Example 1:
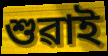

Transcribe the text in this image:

শুৱাই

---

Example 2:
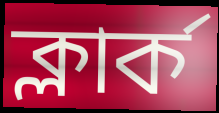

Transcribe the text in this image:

ক্লাৰ্ক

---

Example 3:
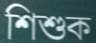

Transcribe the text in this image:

শিশুক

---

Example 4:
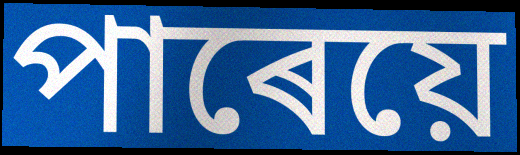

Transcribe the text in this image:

পাৰেয়ে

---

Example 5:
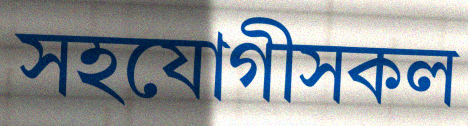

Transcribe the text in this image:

সহযোগীসকল